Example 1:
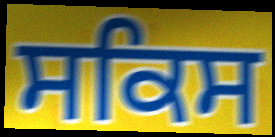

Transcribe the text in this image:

ਸਕਿਸ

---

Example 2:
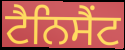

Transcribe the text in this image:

ਟੈਨਿਸੈਂਟ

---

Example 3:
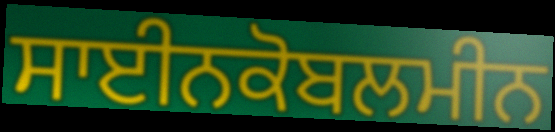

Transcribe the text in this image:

ਸਾਈਨਕੋਬਲਮੀਨ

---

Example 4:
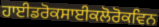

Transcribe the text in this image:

ਹਾਈਡਰੋਕਸਾਈਕਲੋਰੋਕਵਿਨ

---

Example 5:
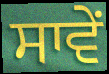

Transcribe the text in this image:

ਸਾਵੇਂ